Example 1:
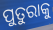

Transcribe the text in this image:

ପୁତୁରାକୁ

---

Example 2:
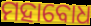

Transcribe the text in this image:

ମହାବୋଧ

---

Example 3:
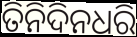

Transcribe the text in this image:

ତିନିଦିନଧରି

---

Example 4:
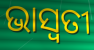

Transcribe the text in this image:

ଭାସ୍ବତୀ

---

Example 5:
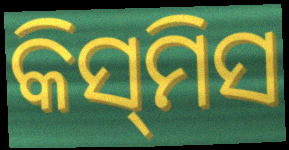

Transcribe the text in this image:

କିସ୍‌ମିସ